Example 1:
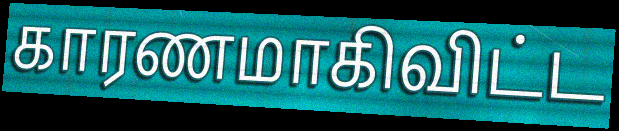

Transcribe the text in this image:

காரணமாகிவிட்ட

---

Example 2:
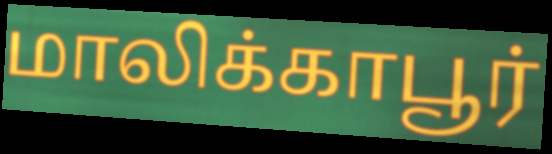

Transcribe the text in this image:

மாலிக்காபூர்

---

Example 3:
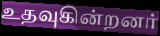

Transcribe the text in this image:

உதவுகின்றனர்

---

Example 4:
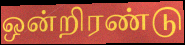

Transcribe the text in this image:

ஒன்றிரண்டு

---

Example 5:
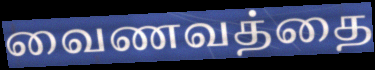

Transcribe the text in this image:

வைணவத்தை